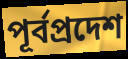
পূর্বপ্রদেশ